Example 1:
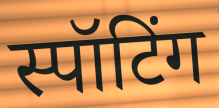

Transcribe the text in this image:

स्पॉटिंग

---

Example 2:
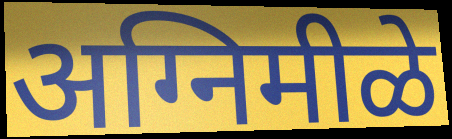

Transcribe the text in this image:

अग्निमीळे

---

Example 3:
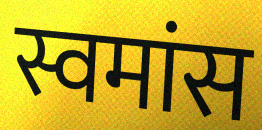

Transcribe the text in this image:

स्वमांस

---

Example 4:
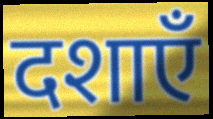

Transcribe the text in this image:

दशाएँ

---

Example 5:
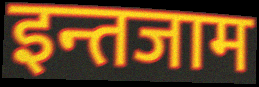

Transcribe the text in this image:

इन्तजाम